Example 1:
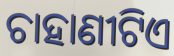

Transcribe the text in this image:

ଚାହାଣୀଟିଏ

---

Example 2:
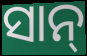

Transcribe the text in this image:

ସାନ୍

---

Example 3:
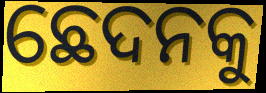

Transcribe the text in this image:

ଛେଦନକୁ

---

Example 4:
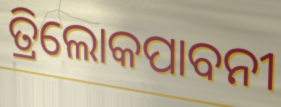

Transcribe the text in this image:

ତ୍ରିଲୋକପାବନୀ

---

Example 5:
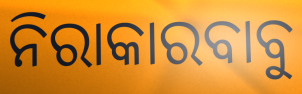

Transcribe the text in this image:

ନିରାକାରବାବୁ